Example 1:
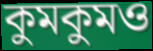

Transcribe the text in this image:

কুমকুমও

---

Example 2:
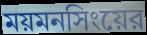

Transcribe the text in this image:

ময়মনসিংয়ের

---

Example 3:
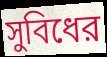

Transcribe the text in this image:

সুবিধের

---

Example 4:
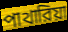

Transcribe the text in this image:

পাথারিয়া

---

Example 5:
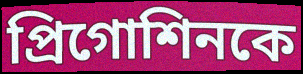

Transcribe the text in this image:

প্রিগোশিনকে